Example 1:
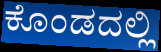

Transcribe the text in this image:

ಕೊಂಡದಲ್ಲಿ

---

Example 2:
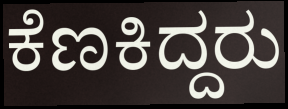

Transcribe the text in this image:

ಕೆಣಕಿದ್ದರು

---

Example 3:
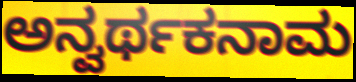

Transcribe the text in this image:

ಅನ್ವರ್ಥಕನಾಮ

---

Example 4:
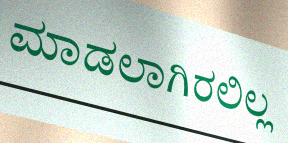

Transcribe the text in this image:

ಮಾಡಲಾಗಿರಲಿಲ್ಲ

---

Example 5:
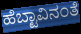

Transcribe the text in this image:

ಹೆಬ್ಟಾವಿನಂತೆ